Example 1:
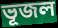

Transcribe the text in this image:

ভূজল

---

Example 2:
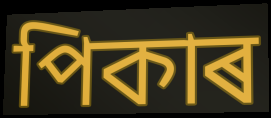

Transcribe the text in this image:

পিকাৰ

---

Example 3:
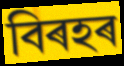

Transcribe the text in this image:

বিৰহৰ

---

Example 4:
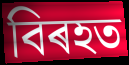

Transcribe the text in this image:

বিৰহত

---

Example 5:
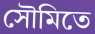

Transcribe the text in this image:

সৌমিতে